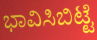
ಭಾವಿಸಿಬಿಟ್ಟೆ